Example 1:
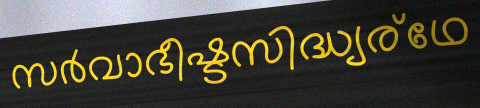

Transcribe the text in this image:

സർവാഭീഷ്ടസിദ്ധ്യര്ഥേ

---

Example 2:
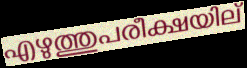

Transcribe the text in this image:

എഴുത്തുപരീക്ഷയില്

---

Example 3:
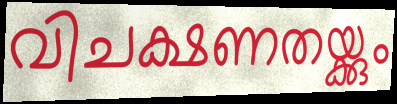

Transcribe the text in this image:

വിചക്ഷണതയ്ക്കും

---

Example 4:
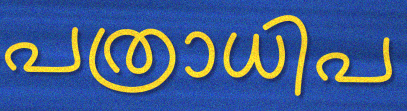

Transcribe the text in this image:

പത്രാധിപ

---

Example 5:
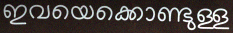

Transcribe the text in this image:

ഇവയെക്കൊണ്ടുള്ള